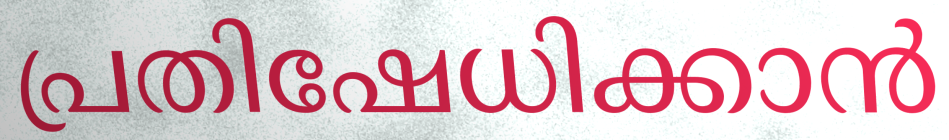
പ്രതിഷേധിക്കാൻ